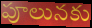
పూలునకు